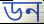
ডন